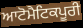
ਆਟੋਮੈਟਿਕਪੂਰੀ